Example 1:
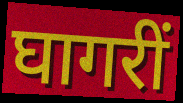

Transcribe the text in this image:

घागरीं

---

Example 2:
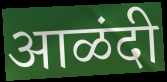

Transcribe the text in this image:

आळंदी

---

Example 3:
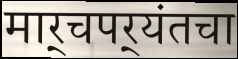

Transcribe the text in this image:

मार्चपर्यंतचा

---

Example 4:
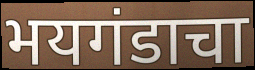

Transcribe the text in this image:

भयगंडाचा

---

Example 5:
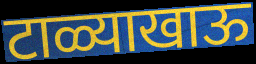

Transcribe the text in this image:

टाळ्याखाऊ